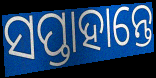
ସପ୍ତାହାନ୍ତେ